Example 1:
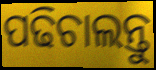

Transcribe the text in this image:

ପଢିଚାଲନ୍ତୁ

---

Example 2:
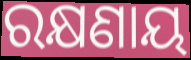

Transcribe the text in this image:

ରକ୍ଷଣାୟ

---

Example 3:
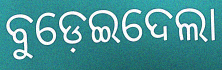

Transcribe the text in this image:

ବୁଡ଼େଇଦେଲା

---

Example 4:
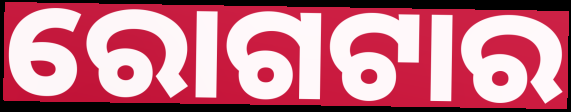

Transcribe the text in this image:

ରୋଗଟାର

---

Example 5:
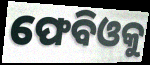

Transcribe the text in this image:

ଫେବିଓକୁ